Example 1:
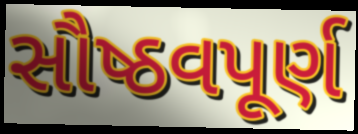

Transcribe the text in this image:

સૌષ્ઠવપૂર્ણ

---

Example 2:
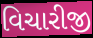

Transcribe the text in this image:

વિચારીજી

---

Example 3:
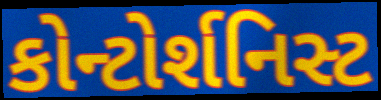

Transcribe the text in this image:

કોન્ટોર્શનિસ્ટ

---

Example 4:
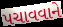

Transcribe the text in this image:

પચાવવાને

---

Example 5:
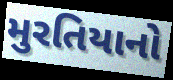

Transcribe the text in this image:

મુરતિયાનો